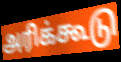
அரிக்கூடு